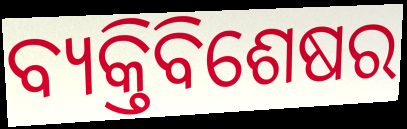
ବ୍ୟକ୍ତିବିଶେଷର